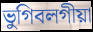
ভুগিবলগীয়া